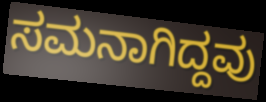
ಸಮನಾಗಿದ್ದವು